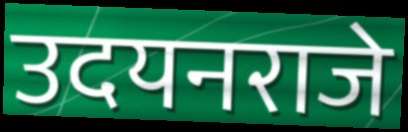
उदयनराजे